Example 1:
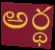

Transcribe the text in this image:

అర్థ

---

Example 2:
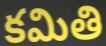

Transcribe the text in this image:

కమితి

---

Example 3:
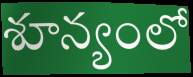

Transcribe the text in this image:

శూన్యంలో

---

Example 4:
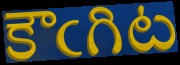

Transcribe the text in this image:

కౌఁగిట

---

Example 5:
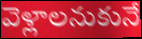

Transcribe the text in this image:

వెళ్లాలనుకునే